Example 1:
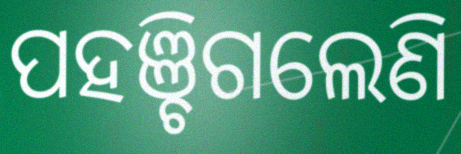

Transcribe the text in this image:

ପହଞ୍ଚିଗଲେଣି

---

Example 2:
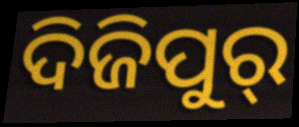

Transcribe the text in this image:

ଦିଜିପୁର୍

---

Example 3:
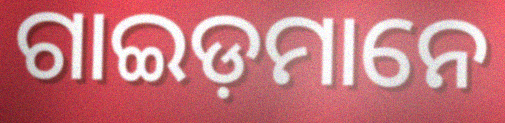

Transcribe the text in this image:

ଗାଇଡ଼ମାନେ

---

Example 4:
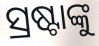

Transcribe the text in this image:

ସ୍ରଷ୍ଟାଙ୍କୁ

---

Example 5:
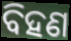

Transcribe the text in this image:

ବିହଣ